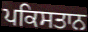
ਪਕਿਸਤਾਨ